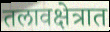
तलावक्षेत्रात